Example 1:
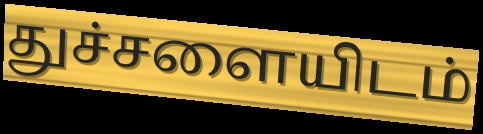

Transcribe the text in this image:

துச்சளையிடம்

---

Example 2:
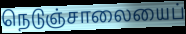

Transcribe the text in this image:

நெடுஞ்சாலையைப்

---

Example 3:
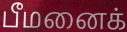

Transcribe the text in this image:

பீமனைக்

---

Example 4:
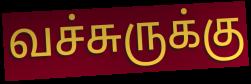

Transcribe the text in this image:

வச்சுருக்கு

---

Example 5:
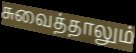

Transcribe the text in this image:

சுவைத்தாலும்